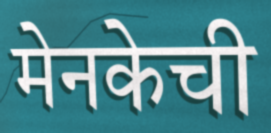
मेनकेची